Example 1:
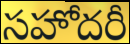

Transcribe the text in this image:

సహోదరీ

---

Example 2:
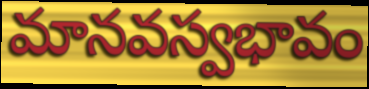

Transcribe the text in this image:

మానవస్వభావం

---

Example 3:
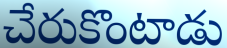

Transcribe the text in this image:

చేరుకొంటాడు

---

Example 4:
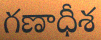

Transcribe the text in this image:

గణాధీశ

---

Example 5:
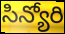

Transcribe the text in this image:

సిన్యోరి